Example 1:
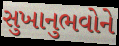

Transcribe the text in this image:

સુખાનુભવોને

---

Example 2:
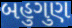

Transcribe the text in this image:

બહુગુણ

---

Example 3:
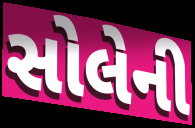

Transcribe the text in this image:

સોલેની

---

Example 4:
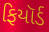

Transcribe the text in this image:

ફિયૉર્ડ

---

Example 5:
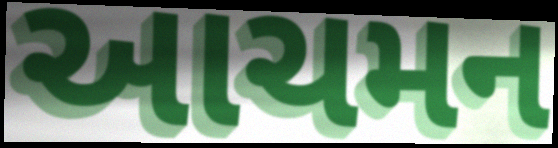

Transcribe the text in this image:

આચમન